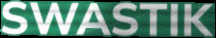
SWASTIK